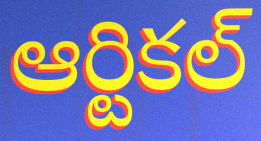
ఆర్టికల్